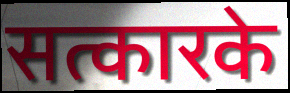
सत्कारके